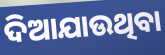
ଦିଆଯାଉଥିବା